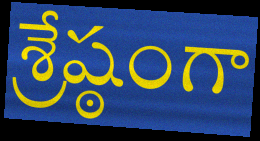
శ్రేష్ఠంగా